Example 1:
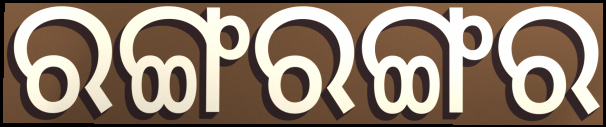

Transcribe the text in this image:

ରଙ୍ଗରଙ୍ଗର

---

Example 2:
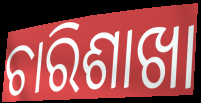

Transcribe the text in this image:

ଚାରିଶାଖା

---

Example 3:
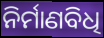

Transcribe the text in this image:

ନିର୍ମାଣବିଧି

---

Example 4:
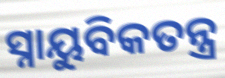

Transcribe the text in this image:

ସ୍ନାୟୁବିକତନ୍ତ୍ର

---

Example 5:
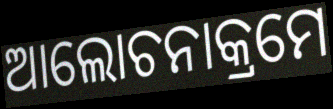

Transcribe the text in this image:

ଆଲୋଚନାକ୍ରମେ